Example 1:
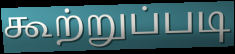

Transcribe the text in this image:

கூற்றுப்படி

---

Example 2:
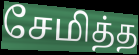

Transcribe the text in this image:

சேமித்த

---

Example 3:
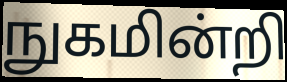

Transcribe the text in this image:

நுகமின்றி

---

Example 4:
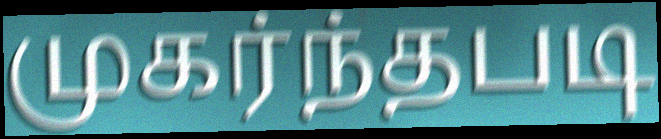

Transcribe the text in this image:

முகர்ந்தபடி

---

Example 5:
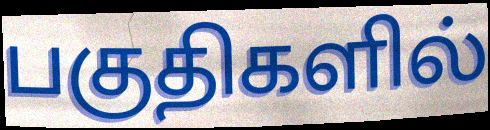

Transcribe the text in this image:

பகுதிகளில்